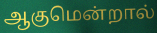
ஆகுமென்றால்